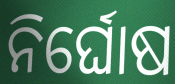
ନିର୍ଘୋଷ